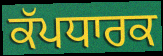
ਕੱਪਧਾਰਕ